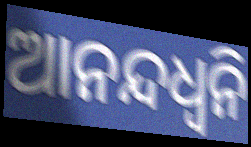
ଆନନ୍ଦଧ୍ଵନି